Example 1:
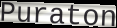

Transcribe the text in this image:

Puraton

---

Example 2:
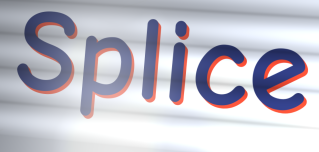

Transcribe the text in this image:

Splice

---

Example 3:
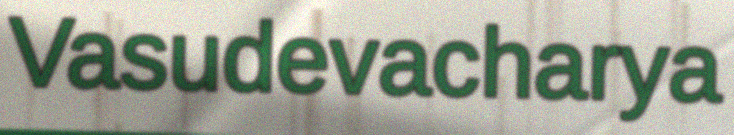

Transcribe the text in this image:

Vasudevacharya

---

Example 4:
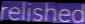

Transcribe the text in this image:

relished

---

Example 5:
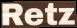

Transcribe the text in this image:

Retz